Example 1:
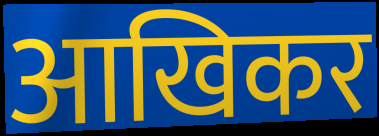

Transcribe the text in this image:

आखिकर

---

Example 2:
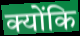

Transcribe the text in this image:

क्‍योंकि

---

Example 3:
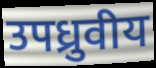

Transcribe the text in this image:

उपध्रुवीय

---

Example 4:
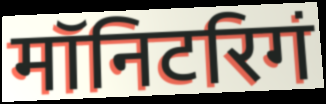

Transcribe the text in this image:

मॉनिटरिगं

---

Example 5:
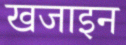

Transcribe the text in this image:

खजाइन